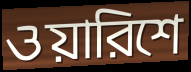
ওয়ারিশে